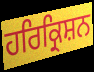
ਹਰਿਕ੍ਰਿਸ਼ਨ